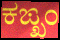
ಕಙ್ಖಂ